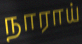
நாராய்